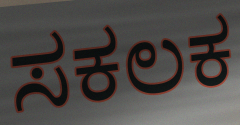
ಸಕಲಕ